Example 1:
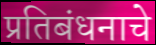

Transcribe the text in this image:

प्रतिबंधनाचे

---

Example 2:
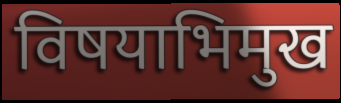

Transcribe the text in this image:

विषयाभिमुख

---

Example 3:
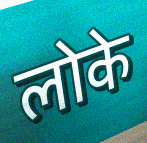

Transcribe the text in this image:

लोके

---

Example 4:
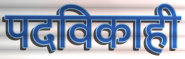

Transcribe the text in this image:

पदविकाही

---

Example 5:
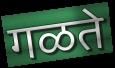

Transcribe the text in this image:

गळते